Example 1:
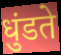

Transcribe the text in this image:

धुंडते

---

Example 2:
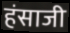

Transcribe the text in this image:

हंसाजी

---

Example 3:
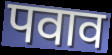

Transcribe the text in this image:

पवाव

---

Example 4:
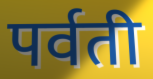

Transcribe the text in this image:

पर्वती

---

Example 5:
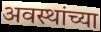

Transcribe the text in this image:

अवस्थांच्या